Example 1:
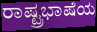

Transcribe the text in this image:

ರಾಷ್ಟ್ರಭಾಷೆಯ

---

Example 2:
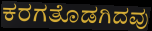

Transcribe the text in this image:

ಕರಗತೊಡಗಿದವು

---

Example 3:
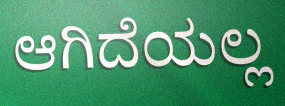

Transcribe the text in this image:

ಆಗಿದೆಯಲ್ಲ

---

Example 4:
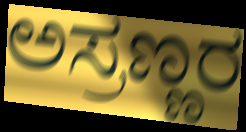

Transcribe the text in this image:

ಅಸ್ರಣ್ಣರ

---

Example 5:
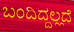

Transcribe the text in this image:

ಬಂದಿದ್ದಲ್ಲದೆ